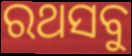
ରଥସବୁ